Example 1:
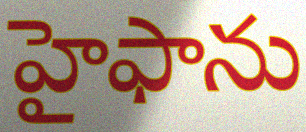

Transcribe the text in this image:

హైఫాను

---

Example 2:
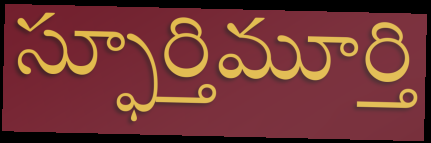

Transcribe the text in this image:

స్ఫూర్తిమూర్తి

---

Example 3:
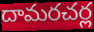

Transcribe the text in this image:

దామరచర్ల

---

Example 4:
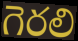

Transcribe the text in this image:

గెరలి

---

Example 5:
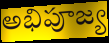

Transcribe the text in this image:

అభిపూజ్య